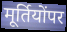
मूर्तियोंपर